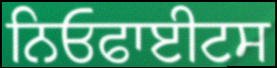
ਨਿਓਫਾਈਟਸ